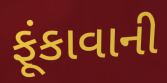
ફૂંકાવાની